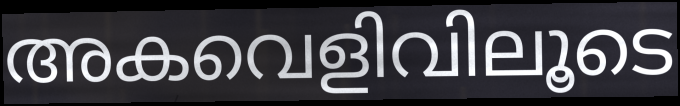
അകവെളിവിലൂടെ